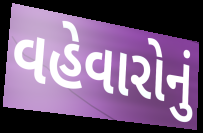
વહેવારોનું